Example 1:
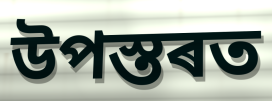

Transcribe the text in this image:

উপস্তৰত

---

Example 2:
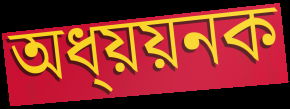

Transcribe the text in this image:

অধ্য়য়নক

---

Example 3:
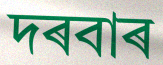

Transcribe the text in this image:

দৰবাৰ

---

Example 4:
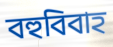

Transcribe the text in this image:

বহুবিবাহ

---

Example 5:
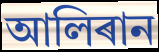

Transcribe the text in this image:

আলিৰান